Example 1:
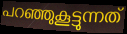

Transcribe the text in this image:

പറഞ്ഞുകൂട്ടുന്നത്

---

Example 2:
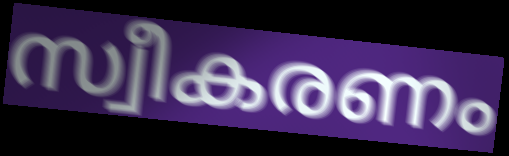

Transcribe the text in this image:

സ്വീകരണം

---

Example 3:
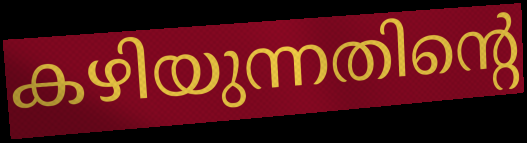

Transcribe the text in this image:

കഴിയുന്നതിന്റെ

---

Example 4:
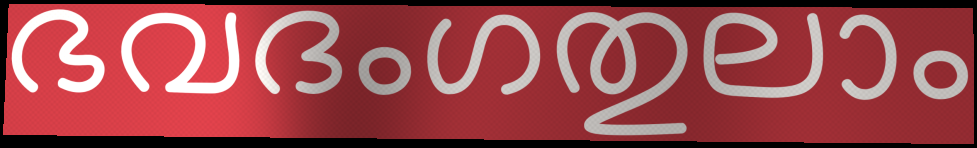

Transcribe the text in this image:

ഭവദംഗതുലാം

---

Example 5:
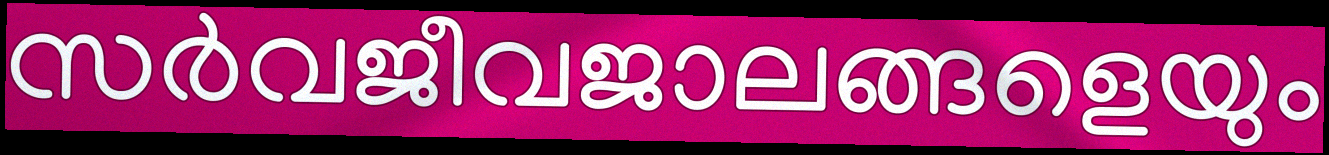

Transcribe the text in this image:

സർവജീവജാലങ്ങളെയും